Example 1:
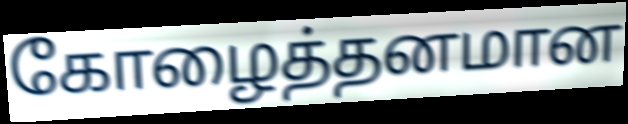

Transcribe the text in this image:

கோழைத்தனமான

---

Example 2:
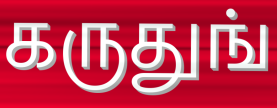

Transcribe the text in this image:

கருதுங்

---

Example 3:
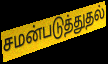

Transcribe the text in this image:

சமன்படுத்துதல்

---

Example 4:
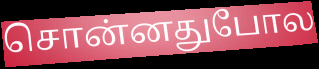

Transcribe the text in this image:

சொன்னதுபோல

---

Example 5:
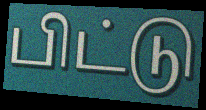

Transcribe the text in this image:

பிட்டு